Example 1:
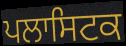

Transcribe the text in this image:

ਪਲਾਸਿਟਕ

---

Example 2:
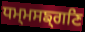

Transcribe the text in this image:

ਧਮ੍ਮਸਙ੍ਗਣਿ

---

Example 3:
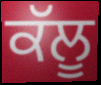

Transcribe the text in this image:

ਕੱਲੂ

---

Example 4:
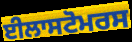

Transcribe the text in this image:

ਈਲਾਸਟੋਮਰਸ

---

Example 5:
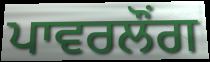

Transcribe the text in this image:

ਪਾਵਰਲੌਂਗ